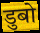
डुबो